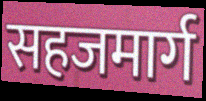
सहजमार्ग